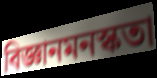
বিজ্ঞানমনস্কতা